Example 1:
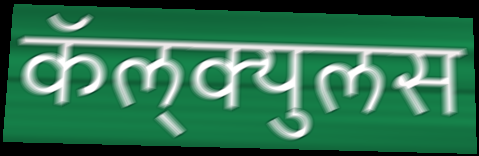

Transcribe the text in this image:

कॅल्क्युलस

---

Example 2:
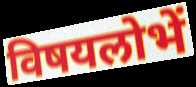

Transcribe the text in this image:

विषयलोभें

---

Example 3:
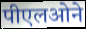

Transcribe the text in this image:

पीएलओने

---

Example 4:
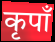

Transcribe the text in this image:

कृपाँ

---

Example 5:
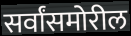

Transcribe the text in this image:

सर्वांसमोरील